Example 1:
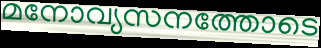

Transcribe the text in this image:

മനോവ്യസനത്തോടെ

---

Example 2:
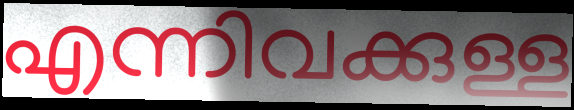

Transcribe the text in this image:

എന്നിവക്കുള്ള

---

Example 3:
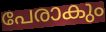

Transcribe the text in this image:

പേരാകും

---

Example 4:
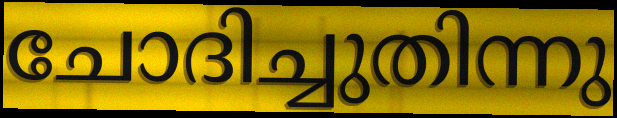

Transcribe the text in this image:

ചോദിച്ചുതിന്നു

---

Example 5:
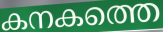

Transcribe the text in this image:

കനകത്തെ